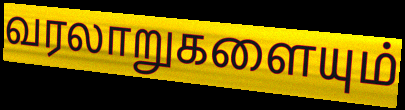
வரலாறுகளையும்